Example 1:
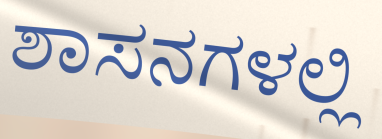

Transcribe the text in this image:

ಶಾಸನಗಳಲ್ಲಿ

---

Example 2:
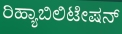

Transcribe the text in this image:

ರಿಹ್ಯಾಬಿಲಿಟೇಷನ್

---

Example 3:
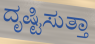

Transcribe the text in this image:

ದೃಷ್ಟಿಸುತ್ತಾ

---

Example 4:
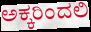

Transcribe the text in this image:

ಅಕ್ಕರಿಂದಲಿ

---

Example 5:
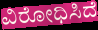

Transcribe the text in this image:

ವಿರೋಧಿಸಿದೆ